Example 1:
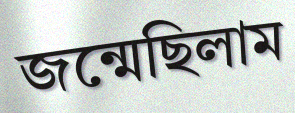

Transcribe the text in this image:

জন্মেছিলাম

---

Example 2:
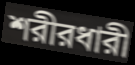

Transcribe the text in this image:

শরীরধারী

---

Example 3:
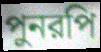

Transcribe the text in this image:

পুনরপি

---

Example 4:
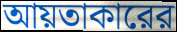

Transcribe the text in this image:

আয়তাকারের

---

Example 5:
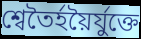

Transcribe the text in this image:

শ্বেতৈর্হয়ৈর্যুক্তে